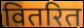
वितरित